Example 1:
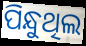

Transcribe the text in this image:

ପିନ୍ଧୁଥିଲ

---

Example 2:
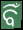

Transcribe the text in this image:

ବିଁ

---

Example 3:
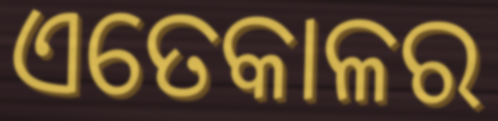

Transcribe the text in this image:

ଏତେକାଳର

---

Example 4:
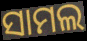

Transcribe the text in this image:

ସାମଲ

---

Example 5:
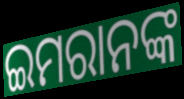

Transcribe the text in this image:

ଇମରାନଙ୍କ